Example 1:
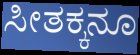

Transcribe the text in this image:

ಸೀತಕ್ಕನೂ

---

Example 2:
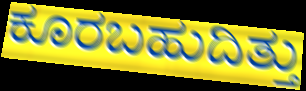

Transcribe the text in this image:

ಕೂರಬಹುದಿತ್ತು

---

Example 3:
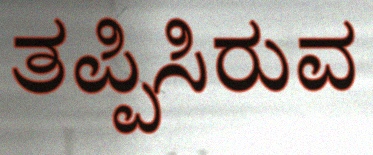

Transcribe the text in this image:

ತಪ್ಪಿಸಿರುವ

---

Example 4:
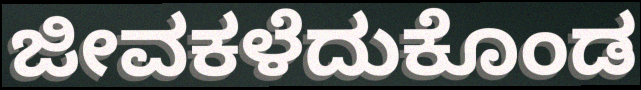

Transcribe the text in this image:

ಜೀವಕಳೆದುಕೊಂಡ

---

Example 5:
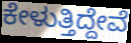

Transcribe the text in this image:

ಕೇಳುತ್ತಿದ್ದೇವೆ